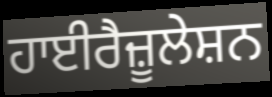
ਹਾਈਰੈਜ਼ੂਲੇਸ਼ਨ